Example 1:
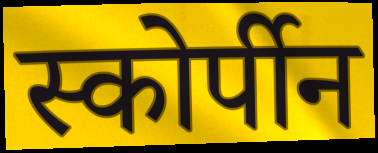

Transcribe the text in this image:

स्कोर्पीन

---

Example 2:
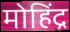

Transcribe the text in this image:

मोहिंद्र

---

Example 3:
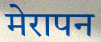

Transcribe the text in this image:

मेरापन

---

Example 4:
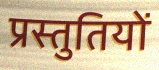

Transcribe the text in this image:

प्रस्तुतियों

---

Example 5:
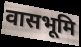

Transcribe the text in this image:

वासभूमि